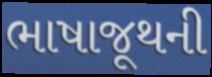
ભાષાજૂથની